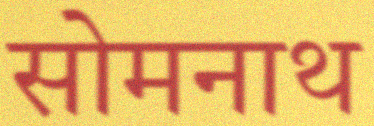
सोमनाथ